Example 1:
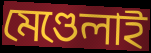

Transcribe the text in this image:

মেণ্ডেলাই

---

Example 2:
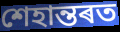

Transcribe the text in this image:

শেহান্তৰত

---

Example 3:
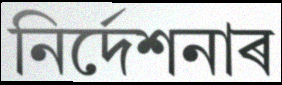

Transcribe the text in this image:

নিৰ্দেশনাৰ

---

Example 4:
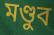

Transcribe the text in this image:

মণ্ডুব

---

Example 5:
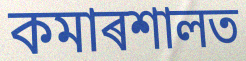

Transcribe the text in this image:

কমাৰশালত